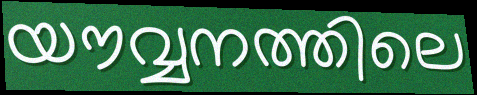
യൗവ്വനത്തിലെ